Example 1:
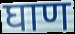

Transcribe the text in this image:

घाण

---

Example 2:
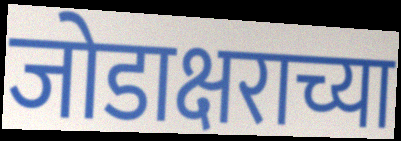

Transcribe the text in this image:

जोडाक्षराच्या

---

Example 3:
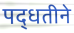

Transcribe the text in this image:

पद्‍धतीने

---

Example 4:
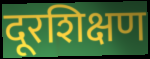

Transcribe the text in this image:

दूरशिक्षण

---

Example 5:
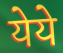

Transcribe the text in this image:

येये